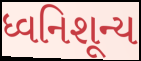
ધ્વનિશૂન્ય